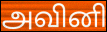
அவினி